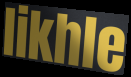
likhle